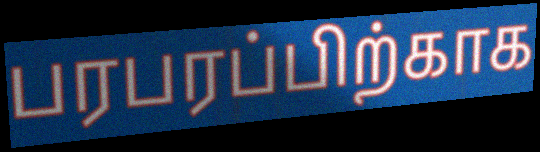
பரபரப்பிற்காக